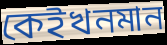
কেইখনমান